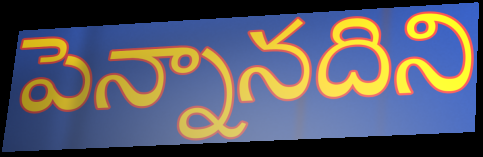
పెన్నానదిని